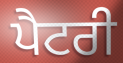
ਪੈਟਰੀ